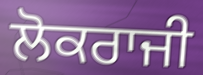
ਲੋਕਰਾਜੀ